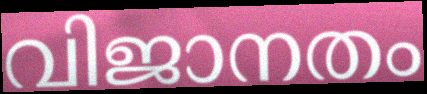
വിജാനതം